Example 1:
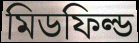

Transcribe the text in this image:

মিডফিল্ড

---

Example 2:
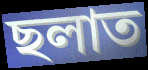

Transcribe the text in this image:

ছলাত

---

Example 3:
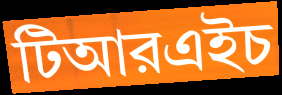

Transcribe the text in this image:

টিআরএইচ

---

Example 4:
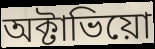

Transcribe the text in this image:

অক্টাভিয়ো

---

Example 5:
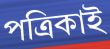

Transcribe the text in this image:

পত্রিকাই